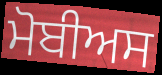
ਮੋਬੀਅਸ